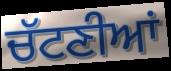
ਚੱਟਣੀਆਂ